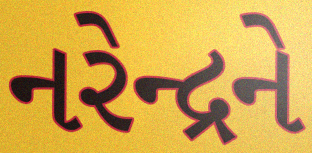
નરેન્દ્રને